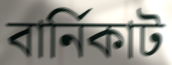
বার্নিকাট